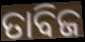
ତାବିଜ